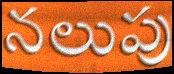
నలుపు